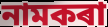
নামকৰা